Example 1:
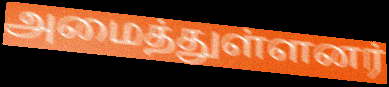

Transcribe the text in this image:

அமைத்துள்ளனர்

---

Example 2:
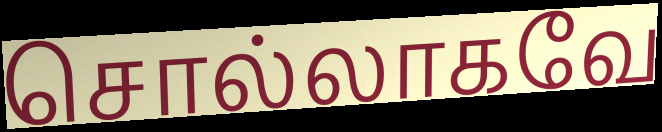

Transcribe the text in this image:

சொல்லாகவே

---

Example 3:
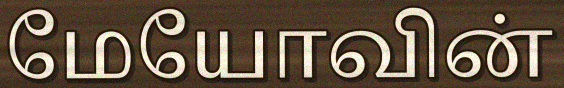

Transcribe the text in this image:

மேயோவின்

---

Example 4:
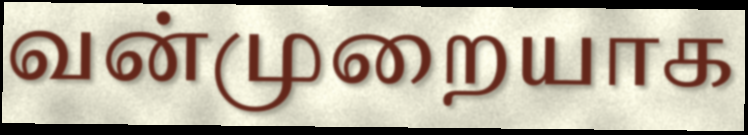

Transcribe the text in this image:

வன்முறையாக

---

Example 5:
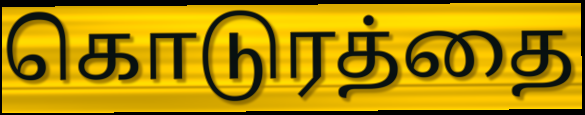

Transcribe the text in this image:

கொடுரத்தை